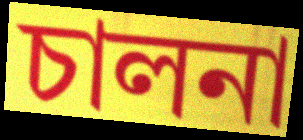
চালনা